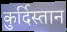
कुर्दिस्तान